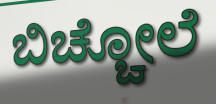
ಬಿಚ್ಚೋಲೆ